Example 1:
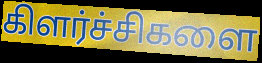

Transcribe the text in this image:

கிளர்ச்சிகளை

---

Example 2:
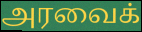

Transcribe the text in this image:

அரவைக்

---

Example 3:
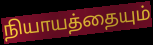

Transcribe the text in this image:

நியாயத்தையும்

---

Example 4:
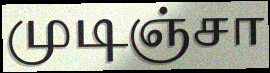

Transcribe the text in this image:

முடிஞ்சா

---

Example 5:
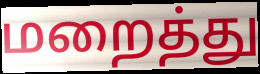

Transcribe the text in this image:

மறைத்து